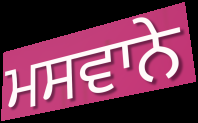
ਮਸਵਾਨੇ